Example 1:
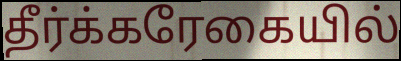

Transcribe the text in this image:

தீர்க்கரேகையில்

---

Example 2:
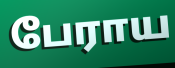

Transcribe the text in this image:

பேராய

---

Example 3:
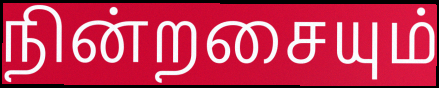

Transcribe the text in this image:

நின்றசையும்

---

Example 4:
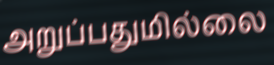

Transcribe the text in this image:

அறுப்பதுமில்லை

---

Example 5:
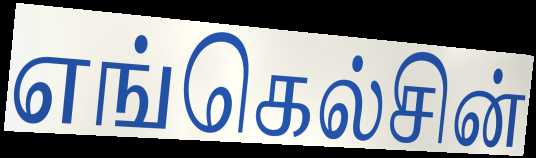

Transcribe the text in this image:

எங்கெல்சின்